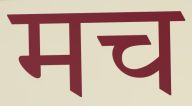
मच